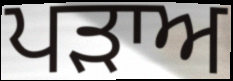
ਪਡ਼ਾਅ